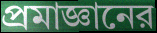
প্রমাজ্ঞানের